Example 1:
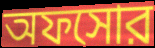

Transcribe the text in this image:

অফসোর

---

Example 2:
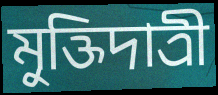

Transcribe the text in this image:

মুক্তিদাত্রী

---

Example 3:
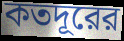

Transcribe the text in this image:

কতদূরের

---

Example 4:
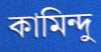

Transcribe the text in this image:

কামিন্দু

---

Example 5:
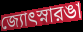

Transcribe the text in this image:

জ্যোৎস্নারঙা